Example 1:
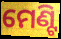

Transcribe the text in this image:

ମେଣ୍ଟି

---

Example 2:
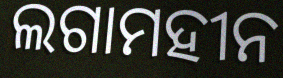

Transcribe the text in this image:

ଲଗାମହୀନ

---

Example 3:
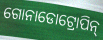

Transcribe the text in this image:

ଗୋନାଡୋଟ୍ରୋପିନ୍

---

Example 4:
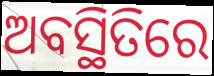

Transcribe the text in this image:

ଅବସ୍ଥିତିରେ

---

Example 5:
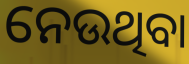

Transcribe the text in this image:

ନେଉଥିବା